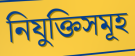
নিযুক্তিসমূহ